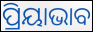
ପ୍ରିୟାଭାବ